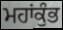
ਮਹਾਂਕੁੰਭ